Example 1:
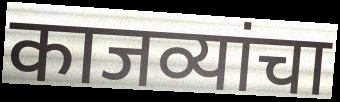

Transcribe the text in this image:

काजव्यांचा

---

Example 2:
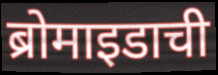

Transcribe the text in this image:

ब्रोमाइडाची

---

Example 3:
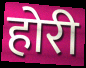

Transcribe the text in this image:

होरी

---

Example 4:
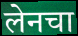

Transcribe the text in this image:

लेनचा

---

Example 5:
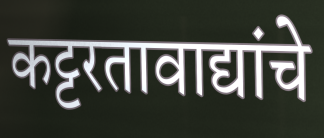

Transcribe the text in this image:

कट्टरतावाद्यांचे